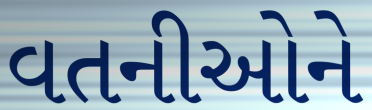
વતનીઓને